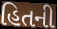
હિતની